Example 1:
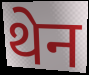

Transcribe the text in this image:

थेन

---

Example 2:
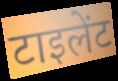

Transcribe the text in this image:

टाइलेंट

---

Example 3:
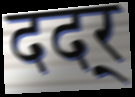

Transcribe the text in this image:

ददर्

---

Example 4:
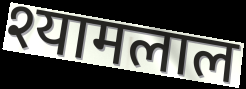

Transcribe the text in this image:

श्यामलाल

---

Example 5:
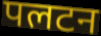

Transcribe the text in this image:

पलटन